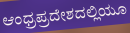
ಆಂಧ್ರಪ್ರದೇಶದಲ್ಲಿಯೂ